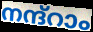
നന്ദ്റാം